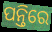
ପନ୍ତିରେ